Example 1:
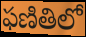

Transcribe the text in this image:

ఫణితిలో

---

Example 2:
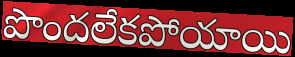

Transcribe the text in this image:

పొందలేకపోయాయి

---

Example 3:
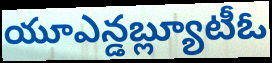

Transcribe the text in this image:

యూఎన్డబ్ల్యూటీఓ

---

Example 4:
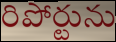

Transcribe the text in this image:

రిపోర్టును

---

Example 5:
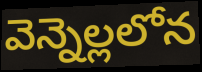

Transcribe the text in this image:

వెన్నెల్లలోన